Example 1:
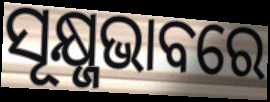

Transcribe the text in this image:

ସୂକ୍ଷ୍ଜଭାବରେ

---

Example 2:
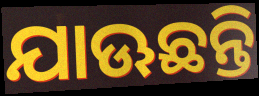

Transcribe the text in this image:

ଯାଊଛନ୍ତି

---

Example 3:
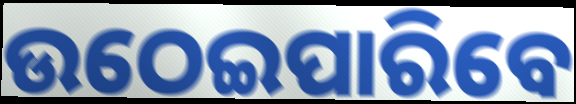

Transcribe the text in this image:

ଉଠେଇପାରିବେ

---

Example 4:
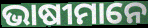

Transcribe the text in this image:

ଭାଷୀମାନେ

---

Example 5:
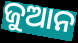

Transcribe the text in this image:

ଜୁଆନ